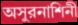
অসুরনাশিনী